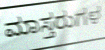
ಮಾಸ್ತರುಗಳ